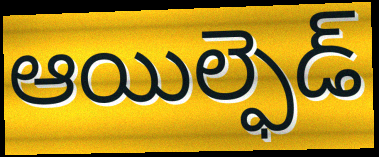
ఆయిల్ఫెడ్